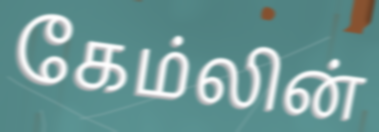
கேம்லின்